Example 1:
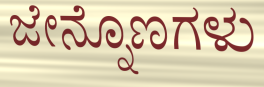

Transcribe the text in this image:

ಜೇನ್ನೊಣಗಳು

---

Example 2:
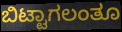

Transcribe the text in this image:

ಬಿಟ್ಟಾಗಲಂತೂ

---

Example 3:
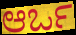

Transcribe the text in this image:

ಆರ್ಒ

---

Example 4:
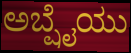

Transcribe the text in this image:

ಅಬ್ಷೈಯು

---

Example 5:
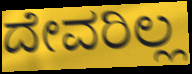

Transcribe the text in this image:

ದೇವರಿಲ್ಲ